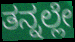
ತನ್ನಲ್ಲೇ